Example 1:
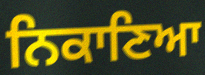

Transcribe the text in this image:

ਨਿਕਾਣਿਆ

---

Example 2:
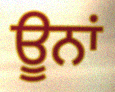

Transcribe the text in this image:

ਊਨਾਂ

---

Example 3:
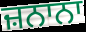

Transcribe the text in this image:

ਜ਼ਨਾਨਾ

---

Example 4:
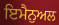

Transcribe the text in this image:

ਇਮੈਨੁਅਲ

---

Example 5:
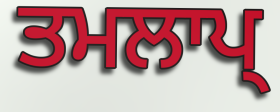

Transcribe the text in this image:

ਤਮਲਾਪ੍